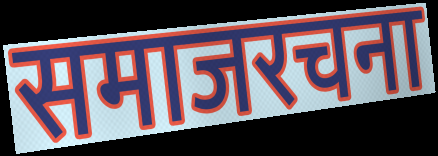
समाजरचना